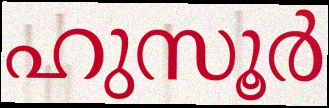
ഹുസൂർ